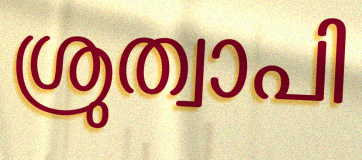
ശ്രുത്വാപി